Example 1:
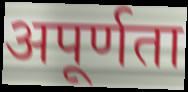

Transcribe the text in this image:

अपूर्णता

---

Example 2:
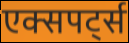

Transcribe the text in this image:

एक्सपर्ट्स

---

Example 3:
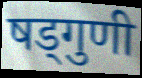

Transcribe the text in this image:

षड्गुणी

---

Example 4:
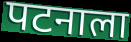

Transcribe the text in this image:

पटनाला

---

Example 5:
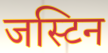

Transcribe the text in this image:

जस्टिन